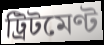
ট্ৰিটমেণ্ট